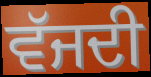
ਵੱਜਦੀ